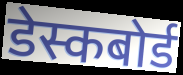
डेस्कबोर्ड